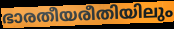
ഭാരതീയരീതിയിലും